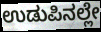
ಉಡುಪಿನಲ್ಲೇ